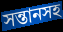
সন্তানসহ